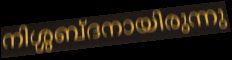
നിശ്ശബ്ദനായിരുന്നു